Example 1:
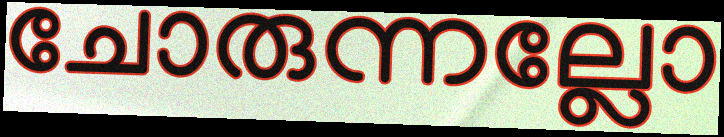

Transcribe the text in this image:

ചോരുന്നല്ലോ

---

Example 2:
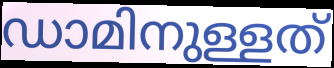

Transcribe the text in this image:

ഡാമിനുള്ളത്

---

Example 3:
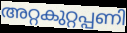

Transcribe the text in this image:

അറ്റകുറ്റപ്പണി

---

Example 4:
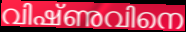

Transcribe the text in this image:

വിഷ്‌ണുവിനെ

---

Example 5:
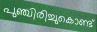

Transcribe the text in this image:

പുഞ്ചിരിച്ചുകൊണ്ട്